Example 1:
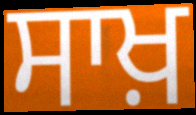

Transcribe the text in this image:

ਸਾਖ਼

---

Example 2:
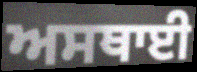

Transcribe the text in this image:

ਅਸਥਾਈ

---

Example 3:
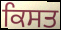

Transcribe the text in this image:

ਕਿਸਤ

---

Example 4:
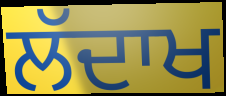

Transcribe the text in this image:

ਲੱਦਾਖ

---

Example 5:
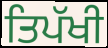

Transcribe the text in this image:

ਤਿਪੱਖੀ